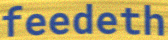
feedeth